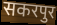
सकरपुर